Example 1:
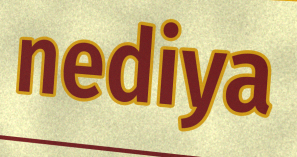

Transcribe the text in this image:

nediya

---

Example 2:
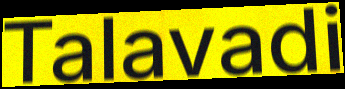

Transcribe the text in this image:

Talavadi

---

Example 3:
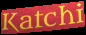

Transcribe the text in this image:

Katchi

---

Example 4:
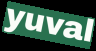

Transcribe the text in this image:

yuval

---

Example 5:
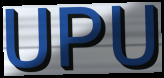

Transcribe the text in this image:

UPU